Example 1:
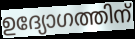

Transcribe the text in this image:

ഉദ്യോഗത്തിന്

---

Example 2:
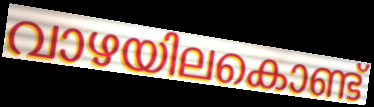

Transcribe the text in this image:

വാഴയിലകൊണ്ട്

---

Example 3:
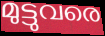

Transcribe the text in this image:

മുട്ടുവരെ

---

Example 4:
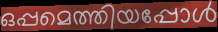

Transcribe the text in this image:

ഒപ്പമെത്തിയപ്പോൾ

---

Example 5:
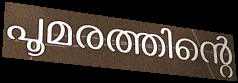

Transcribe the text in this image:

പൂമരത്തിന്റെ